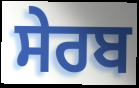
ਸੇਰਬ